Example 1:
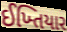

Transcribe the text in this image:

ઈખ્તિયાર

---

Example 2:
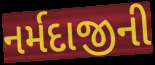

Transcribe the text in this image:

નર્મદાજીની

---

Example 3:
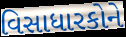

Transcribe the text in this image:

વિસાધારકોને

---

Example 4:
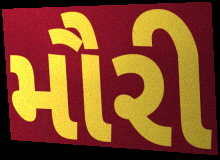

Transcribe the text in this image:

મૌરી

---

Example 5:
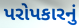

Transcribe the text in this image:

પરોપકારનું